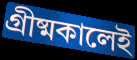
গ্রীষ্মকালেই